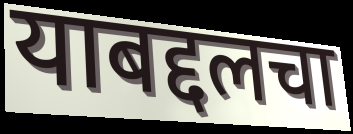
याबद्दलचा